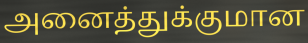
அனைத்துக்குமான